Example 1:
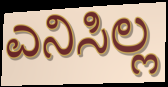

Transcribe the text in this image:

ಎನಿಸಿಲ್ಲ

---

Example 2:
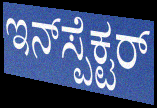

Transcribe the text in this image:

ಇನ್‌ಸ್ಪೆಕ್ಟರ್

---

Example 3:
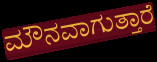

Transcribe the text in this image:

ಮೌನವಾಗುತ್ತಾರೆ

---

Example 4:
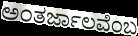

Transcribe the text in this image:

ಅಂತರ್ಜಾಲವೆಂಬ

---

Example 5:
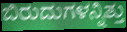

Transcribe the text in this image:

ಬಿರುದುಗಳನ್ನಿತ್ತು